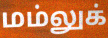
மம்லுக்